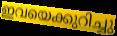
ഇവയെക്കുറിച്ചു